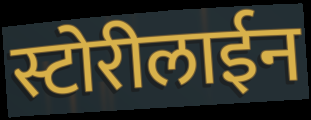
स्टोरीलाईन